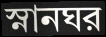
স্নানঘর